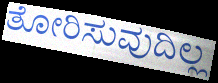
ತೋರಿಸುವುದಿಲ್ಲ